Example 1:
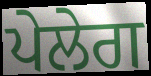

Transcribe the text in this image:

ਪੇਲੇਗ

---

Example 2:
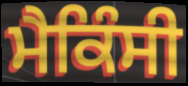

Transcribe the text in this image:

ਮੈਕਿੰਸੀ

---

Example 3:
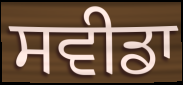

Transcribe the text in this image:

ਸਵੀਡਾ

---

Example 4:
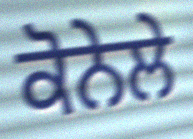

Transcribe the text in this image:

ਕੋਨੇਲੇ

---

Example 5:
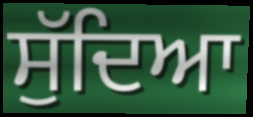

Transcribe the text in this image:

ਸੁੱਦਿਆ